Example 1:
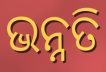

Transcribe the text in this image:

ଭନ୍ନତି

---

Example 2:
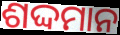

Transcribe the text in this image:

ଶଦ୍ଦମାନ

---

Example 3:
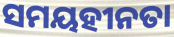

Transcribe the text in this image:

ସମୟହୀନତା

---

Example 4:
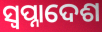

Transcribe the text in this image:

ସ୍ବପ୍ନାଦେଶ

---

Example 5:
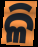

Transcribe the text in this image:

ଳି